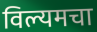
विल्यमचा